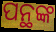
ପନ୍ଥଙ୍କ